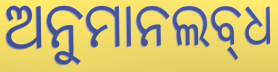
ଅନୁମାନଲବ୍‌ଧ